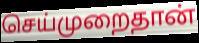
செய்முறைதான்